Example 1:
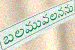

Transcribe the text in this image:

బలమువలనను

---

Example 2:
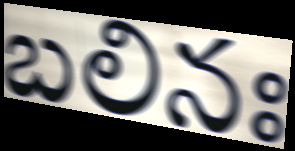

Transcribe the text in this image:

బలినః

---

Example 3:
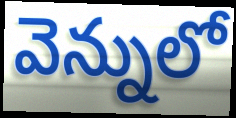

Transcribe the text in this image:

వెన్నులో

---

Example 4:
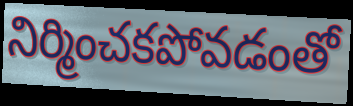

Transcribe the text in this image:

నిర్మించకపోవడంతో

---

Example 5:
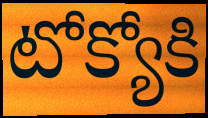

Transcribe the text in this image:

టోక్యోకి